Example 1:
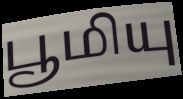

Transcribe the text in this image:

பூமியு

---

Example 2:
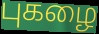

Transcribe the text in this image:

புகழை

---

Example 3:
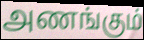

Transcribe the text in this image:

அணங்கும்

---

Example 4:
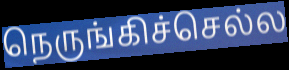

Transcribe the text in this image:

நெருங்கிச்செல்ல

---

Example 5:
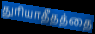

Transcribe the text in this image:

துரியாதீதத்தை